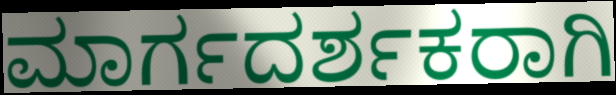
ಮಾರ್ಗದರ್ಶಕರಾಗಿ